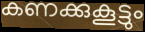
കണക്കുകൂട്ടും